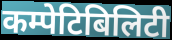
कम्पेटिबिलिटी